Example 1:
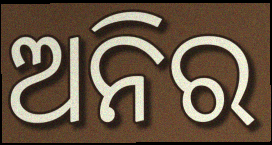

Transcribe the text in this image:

ଅନିର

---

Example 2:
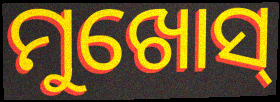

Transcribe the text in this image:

ମୁଖୋସ୍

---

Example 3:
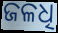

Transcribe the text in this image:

ଜଳଧି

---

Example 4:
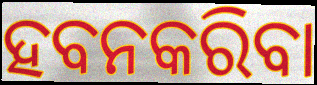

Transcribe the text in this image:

ହବନକରିବା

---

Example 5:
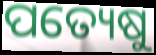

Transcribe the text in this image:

ପତ୍ୟେଷୁ